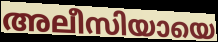
അലീസിയായെ